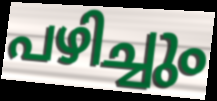
പഴിച്ചും